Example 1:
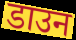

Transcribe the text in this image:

डाउन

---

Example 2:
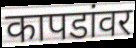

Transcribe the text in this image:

कापडांवर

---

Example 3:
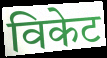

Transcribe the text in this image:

विकेट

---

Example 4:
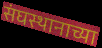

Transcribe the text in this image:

संघस्थानाच्या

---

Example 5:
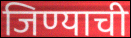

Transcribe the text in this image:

जिण्याची